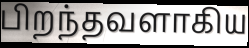
பிறந்தவளாகிய